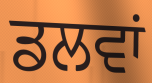
ਡਲਵਾਂ